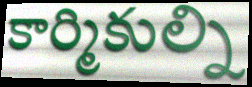
కార్మికుల్ని